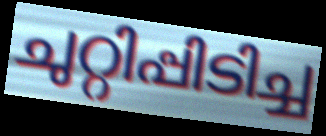
ചുറ്റിപ്പിടിച്ച